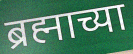
ब्रह्माच्या